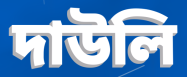
দাউলি